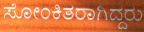
ಸೋಂಕಿತರಾಗಿದ್ದರು